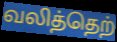
வலித்தெற்